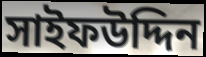
সাইফউদ্দিন